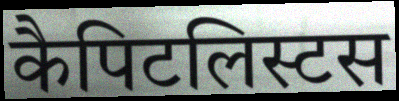
कैपिटलिस्टस